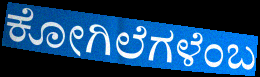
ಕೋಗಿಲೆಗಳೆಂಬ